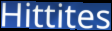
Hittites